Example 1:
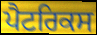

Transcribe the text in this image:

ਪੈਟਰਿਕਸ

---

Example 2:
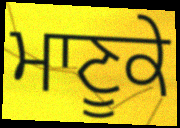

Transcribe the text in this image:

ਮਾਣੂਕੇ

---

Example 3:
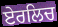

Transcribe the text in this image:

ਏਰਲਿਚ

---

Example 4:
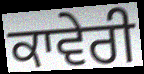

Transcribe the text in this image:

ਕਾਵੇਰੀ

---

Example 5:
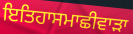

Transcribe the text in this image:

ਇਤਿਹਾਸਮਾਛੀਵਾੜਾ